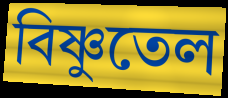
বিষ্ণুতেল